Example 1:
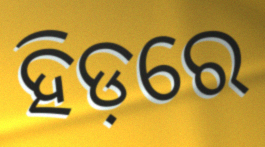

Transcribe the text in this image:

ହିଡ଼ରେ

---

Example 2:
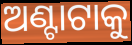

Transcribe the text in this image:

ଅଣ୍ଟାଟାକୁ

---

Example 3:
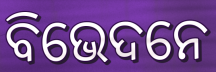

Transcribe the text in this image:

ବିଭେଦନେ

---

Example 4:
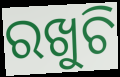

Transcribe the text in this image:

ରଖୁଚି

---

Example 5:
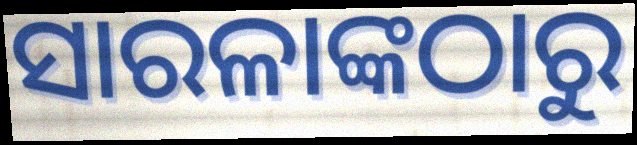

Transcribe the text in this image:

ସାରଳାଙ୍କଠାରୁ